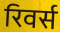
रिवर्स